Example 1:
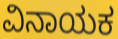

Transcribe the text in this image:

ವಿನಾಯಕ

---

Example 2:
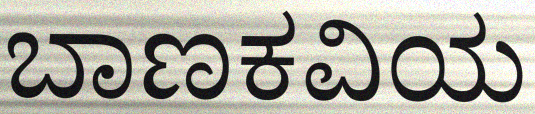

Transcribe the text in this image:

ಬಾಣಕವಿಯ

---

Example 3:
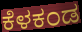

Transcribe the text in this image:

ಕೆಳಕಂಡ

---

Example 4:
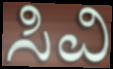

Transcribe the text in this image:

ಸಿವಿ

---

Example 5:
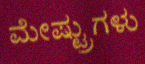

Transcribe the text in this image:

ಮೇಷ್ಟ್ರುಗಳು